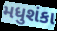
મધુશંકા